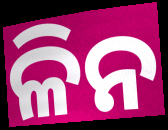
ଳିନ